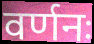
वर्णनः